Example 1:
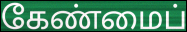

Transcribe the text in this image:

கேண்மைப்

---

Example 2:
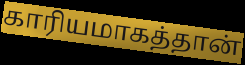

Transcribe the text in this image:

காரியமாகத்தான்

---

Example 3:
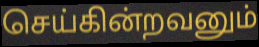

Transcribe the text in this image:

செய்கின்றவனும்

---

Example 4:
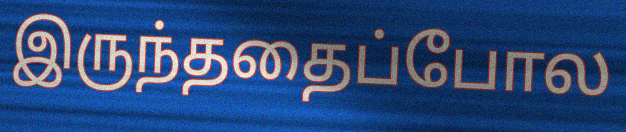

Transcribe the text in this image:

இருந்ததைப்போல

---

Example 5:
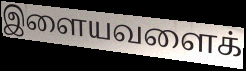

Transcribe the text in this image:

இளையவளைக்